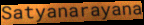
Satyanarayana